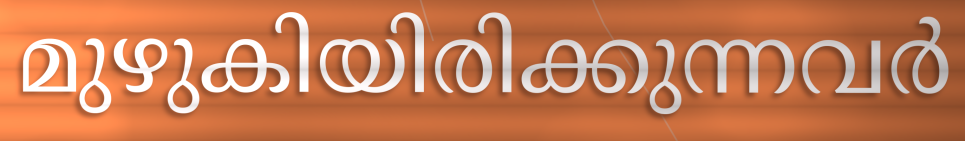
മുഴുകിയിരിക്കുന്നവർ